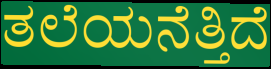
ತಲೆಯನೆತ್ತಿದೆ